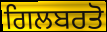
ਗਿਲਬਰਤੋ